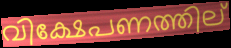
വിക്ഷേപണത്തില്